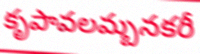
కృపావలమ్బనకరీ